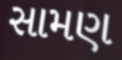
સામણ